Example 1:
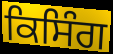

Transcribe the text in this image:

ਕਿਸਿੰਗ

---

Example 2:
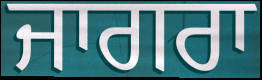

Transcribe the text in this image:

ਜਾਗਰਾ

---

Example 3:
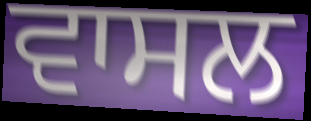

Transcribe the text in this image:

ਵਾਸਲ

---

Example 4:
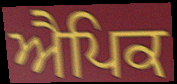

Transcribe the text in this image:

ਐਪਿਕ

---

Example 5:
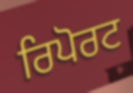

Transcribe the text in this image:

ਰਿਪੋਰਟ